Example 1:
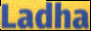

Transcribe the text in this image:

Ladha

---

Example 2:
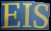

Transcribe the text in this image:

EIS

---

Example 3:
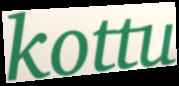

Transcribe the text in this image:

kottu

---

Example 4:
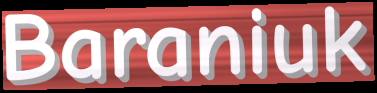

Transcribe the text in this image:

Baraniuk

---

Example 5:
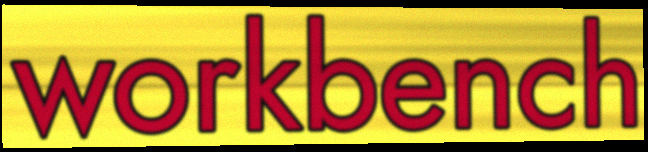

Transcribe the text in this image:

workbench